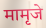
मामृजे